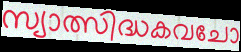
സ്യാത്സിദ്ധകവചോ